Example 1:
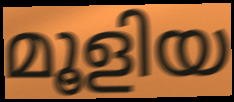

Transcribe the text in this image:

മൂളിയ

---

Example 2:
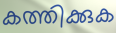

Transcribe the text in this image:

കത്തിക്കുക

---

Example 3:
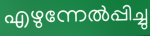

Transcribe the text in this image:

എഴുന്നേൽപ്പിച്ചു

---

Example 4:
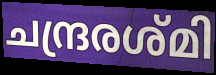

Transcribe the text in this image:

ചന്ദ്രരശ്മി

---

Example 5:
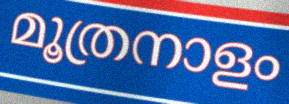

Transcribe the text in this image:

മൂത്രനാളം